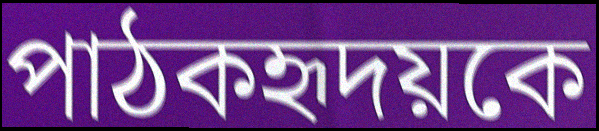
পাঠকহৃদয়কে